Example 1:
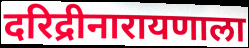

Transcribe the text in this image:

दरिद्रीनारायणाला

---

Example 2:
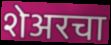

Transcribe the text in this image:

शेअरचा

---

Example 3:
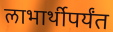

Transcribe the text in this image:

लाभार्थीपर्यंत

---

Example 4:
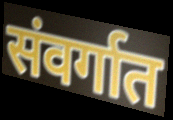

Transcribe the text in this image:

संवर्गात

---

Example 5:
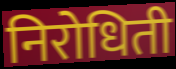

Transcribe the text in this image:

निरोधिती